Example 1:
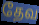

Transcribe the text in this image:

தேவ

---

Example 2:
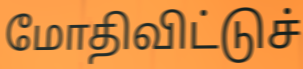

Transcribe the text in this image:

மோதிவிட்டுச்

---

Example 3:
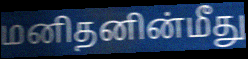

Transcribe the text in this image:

மனிதனின்மீது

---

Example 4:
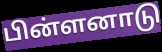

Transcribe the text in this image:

பின்ளனாடு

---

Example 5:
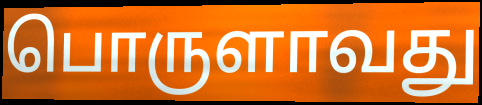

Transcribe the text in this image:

பொருளாவது